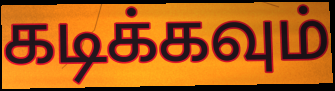
கடிக்கவும்